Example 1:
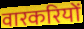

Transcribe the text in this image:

वारकरियों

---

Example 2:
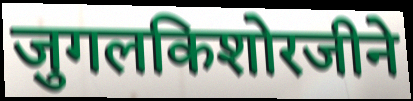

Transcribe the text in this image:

जुगलकिशोरजीने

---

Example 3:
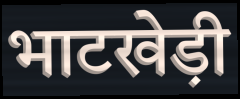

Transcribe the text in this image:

भाटखेड़ी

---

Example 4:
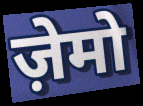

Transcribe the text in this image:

ज़ेमो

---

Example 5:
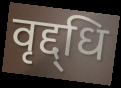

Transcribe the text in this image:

वृद्द्धि